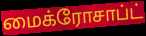
மைக்ரோசாப்ட்